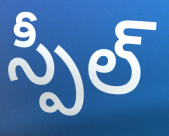
స్పీల్